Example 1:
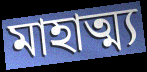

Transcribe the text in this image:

মাহাত্ম্য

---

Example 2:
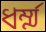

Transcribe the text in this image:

ধৰ্ম্ম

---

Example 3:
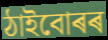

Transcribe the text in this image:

ঠাইবোৰৰ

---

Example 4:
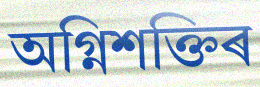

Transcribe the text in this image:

অগ্নিশক্তিৰ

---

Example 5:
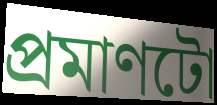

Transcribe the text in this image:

প্ৰমাণটো